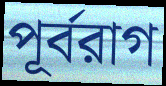
পূর্বরাগ